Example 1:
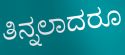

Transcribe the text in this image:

ತಿನ್ನಲಾದರೂ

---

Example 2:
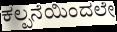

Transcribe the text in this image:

ಕಲ್ಪನೆಯಿಂದಲೇ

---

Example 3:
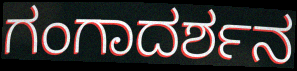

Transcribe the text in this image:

ಗಂಗಾದರ್ಶನ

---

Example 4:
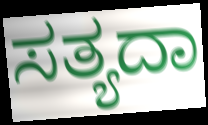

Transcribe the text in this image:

ಸತ್ಯದಾ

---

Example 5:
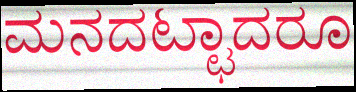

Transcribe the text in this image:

ಮನದಟ್ಟಾದರೂ